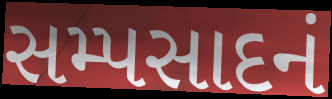
સમ્પસાદનં